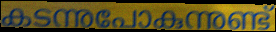
കടന്നുപോകുന്നുണ്ട്